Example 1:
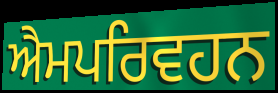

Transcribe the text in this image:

ਐਮਪਰਿਵਹਨ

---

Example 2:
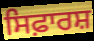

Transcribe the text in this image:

ਸਿਫ਼ਾਰਸ਼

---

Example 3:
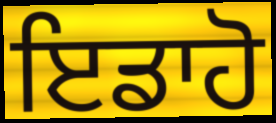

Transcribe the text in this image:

ਇਡਾਹੋ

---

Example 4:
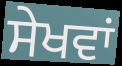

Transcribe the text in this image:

ਸੇਖਵਾਂ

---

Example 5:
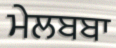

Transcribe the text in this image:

ਮੇਲਬਬਾ